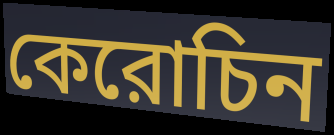
কেরোচিন